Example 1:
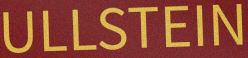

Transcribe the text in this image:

ULLSTEIN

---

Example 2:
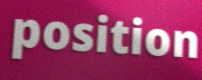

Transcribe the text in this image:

position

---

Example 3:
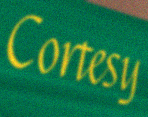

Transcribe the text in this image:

Cortesy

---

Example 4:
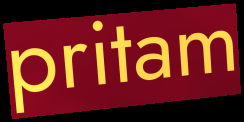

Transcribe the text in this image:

pritam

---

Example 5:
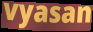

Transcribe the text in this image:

vyasan